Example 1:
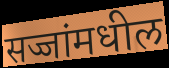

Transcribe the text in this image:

सज्जांमधील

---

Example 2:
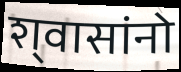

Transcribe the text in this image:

श्वासांनो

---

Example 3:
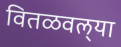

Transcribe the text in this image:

वितळवल्या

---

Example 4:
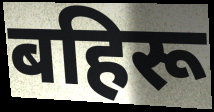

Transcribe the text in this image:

बहिरू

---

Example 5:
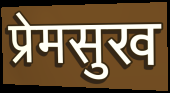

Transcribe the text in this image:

प्रेमसुख